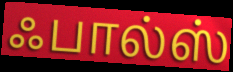
ஃபால்ஸ்